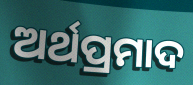
ଅର୍ଥପ୍ରମାଦ